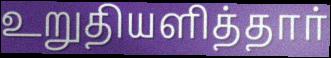
உறுதியளித்தார்